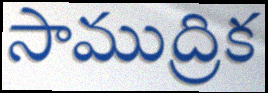
సాముద్రిక